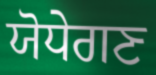
ਯੋਧੇਗਣ